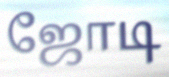
ஜோடி